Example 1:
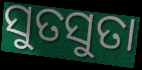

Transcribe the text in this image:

ସୁତସୁତା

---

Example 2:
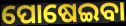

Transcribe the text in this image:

ପୋଷେଇବା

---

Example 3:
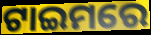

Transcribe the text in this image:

ଟାଇମରେ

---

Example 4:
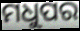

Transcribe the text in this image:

ମଧୁପର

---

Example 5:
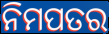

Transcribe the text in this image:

ନିମପତର